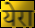
येरा